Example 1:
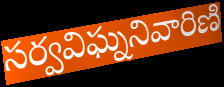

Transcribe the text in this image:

సర్వవిఘ్ననివారిణి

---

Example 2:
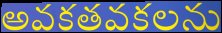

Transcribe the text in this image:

అవకతవకలను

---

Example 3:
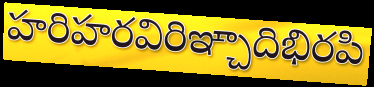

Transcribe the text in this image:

హరిహరవిరిఞ్చాదిభిరపి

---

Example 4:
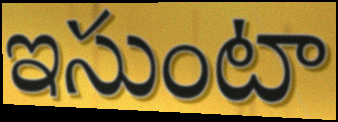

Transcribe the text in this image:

ఇసుంటా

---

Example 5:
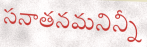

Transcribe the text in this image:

సనాతనమనిన్నీ